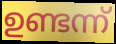
ഉണ്ടന്ന്